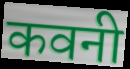
कवनी